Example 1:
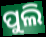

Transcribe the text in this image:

ପୁଲି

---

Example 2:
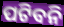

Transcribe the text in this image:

ପଟିବନି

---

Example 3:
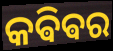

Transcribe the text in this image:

କଵିଵର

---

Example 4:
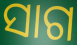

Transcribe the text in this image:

ସାଗ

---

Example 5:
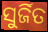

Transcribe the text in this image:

ସୁର୍ଜିତ